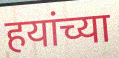
हयांच्या